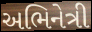
અભિનેત્રી